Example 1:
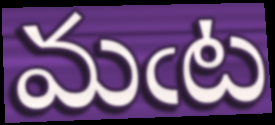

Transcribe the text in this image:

మఁట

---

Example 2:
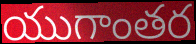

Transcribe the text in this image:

యుగాంతర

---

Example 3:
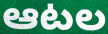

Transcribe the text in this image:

ఆటల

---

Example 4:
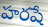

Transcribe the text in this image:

హరషే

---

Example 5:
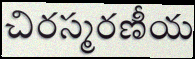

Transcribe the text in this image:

చిరస్మరణీయ